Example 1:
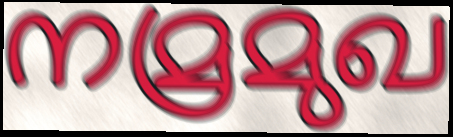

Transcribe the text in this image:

നമ്രമുഖ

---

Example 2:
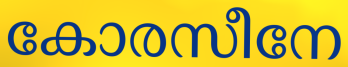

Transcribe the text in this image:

കോരസീനേ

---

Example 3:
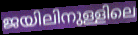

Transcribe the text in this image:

ജയിലിനുള്ളിലെ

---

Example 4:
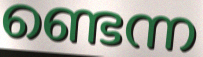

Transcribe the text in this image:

ണ്ടെന്ന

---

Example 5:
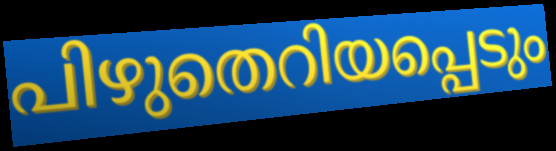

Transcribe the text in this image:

പിഴുതെറിയപ്പെടും